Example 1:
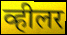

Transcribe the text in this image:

व्हीलर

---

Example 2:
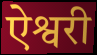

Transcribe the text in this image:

ऐश्वरी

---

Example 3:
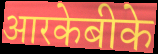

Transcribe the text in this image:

आरकेबीके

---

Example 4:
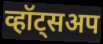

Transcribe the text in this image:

व्हॉट्सअप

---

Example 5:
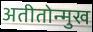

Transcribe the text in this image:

अतीतोन्मुख